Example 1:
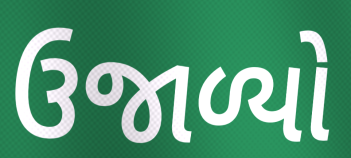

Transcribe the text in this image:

ઉજાળ્યો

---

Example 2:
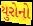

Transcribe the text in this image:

યુરોનો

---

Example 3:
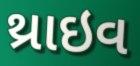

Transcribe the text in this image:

થ્રાઇવ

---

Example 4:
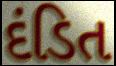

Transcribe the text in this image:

દંડિત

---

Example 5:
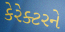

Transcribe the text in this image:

કેરેક્ટરને